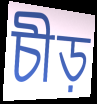
চীড়